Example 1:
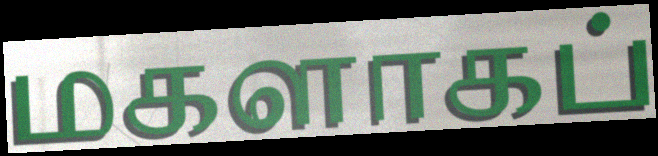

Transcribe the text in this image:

மகளாகப்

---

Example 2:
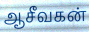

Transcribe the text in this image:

ஆசீவகன்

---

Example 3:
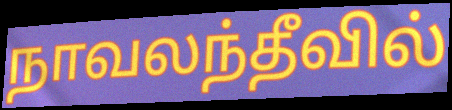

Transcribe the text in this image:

நாவலந்தீவில்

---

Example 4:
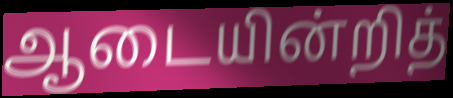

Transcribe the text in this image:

ஆடையின்றித்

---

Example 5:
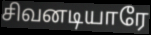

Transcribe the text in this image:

சிவனடியாரே